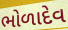
ભોળાદેવ